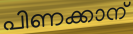
പിണക്കാന്